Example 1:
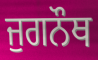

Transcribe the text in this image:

ਜੁਗਨੌਥ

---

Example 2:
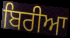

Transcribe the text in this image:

ਬਿਰੀਆ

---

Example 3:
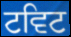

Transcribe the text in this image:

ਟਵਿਟ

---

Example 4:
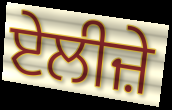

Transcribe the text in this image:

ਏਲੀਜ਼ੇ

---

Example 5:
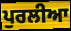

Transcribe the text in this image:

ਪੁਰਲੀਆ